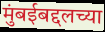
मुंबईबद्दलच्या